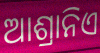
ଆଶ୍ରାନିଏ